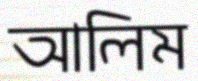
আলিম